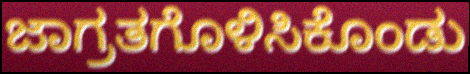
ಜಾಗ್ರತಗೊಳಿಸಿಕೊಂಡು